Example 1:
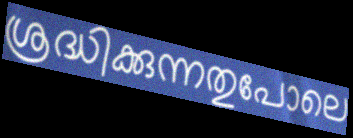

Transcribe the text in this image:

ശ്രദ്ധിക്കുന്നതുപോലെ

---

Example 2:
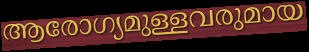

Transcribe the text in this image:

ആരോഗ്യമുള്ളവരുമായ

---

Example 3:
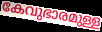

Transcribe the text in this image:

കേവുഭാരമുള്ള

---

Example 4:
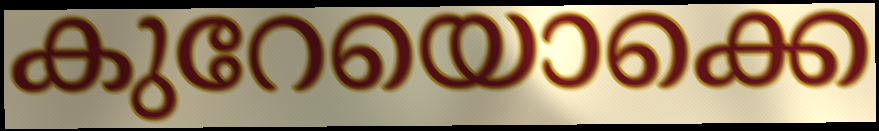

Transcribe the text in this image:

കുറേയൊക്കെ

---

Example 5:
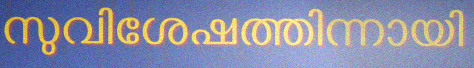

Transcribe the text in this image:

സുവിശേഷത്തിന്നായി